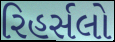
રિહર્સલો